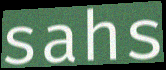
sahs